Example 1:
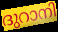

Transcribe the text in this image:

ദുറാനി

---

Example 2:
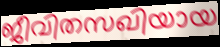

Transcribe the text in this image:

ജീവിതസഖിയായ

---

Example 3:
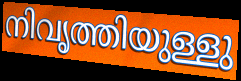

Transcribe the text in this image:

നിവൃത്തിയുള്ളു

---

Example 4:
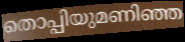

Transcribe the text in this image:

തൊപ്പിയുമണിഞ്ഞ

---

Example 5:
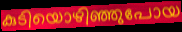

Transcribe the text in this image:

കുടിയൊഴിഞ്ഞുപോയ